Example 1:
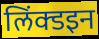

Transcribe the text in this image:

लिंक्डइन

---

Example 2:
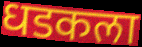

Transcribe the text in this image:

धडकला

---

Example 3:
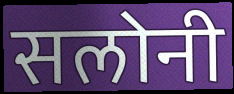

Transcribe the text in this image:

सलोनी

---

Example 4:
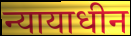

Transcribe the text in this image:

न्यायाधीन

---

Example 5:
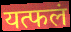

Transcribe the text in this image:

यत्फलं